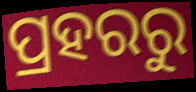
ପ୍ରହରରୁ